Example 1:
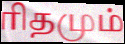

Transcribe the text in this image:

ரிதமும்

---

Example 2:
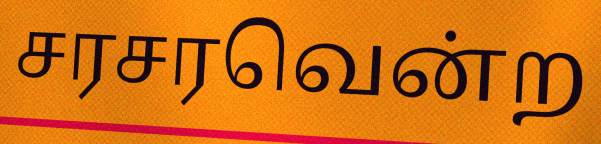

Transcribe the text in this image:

சரசரவென்ற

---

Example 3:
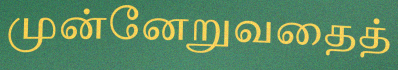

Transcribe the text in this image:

முன்னேறுவதைத்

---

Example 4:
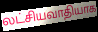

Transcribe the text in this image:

லட்சியவாதியாக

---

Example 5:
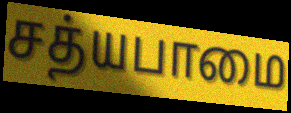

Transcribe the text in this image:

சத்யபாமை